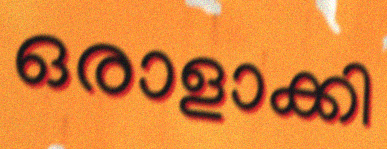
ഒരാളാക്കി